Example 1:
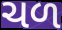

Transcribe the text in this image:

ચળ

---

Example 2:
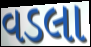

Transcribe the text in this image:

વડલા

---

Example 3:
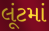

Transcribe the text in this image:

લૂંટમાં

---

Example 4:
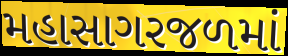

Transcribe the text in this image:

મહાસાગરજળમાં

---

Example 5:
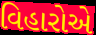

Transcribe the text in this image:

વિહારોએ